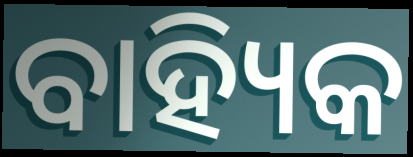
ବାହ୍ୟିକ